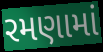
રમણામાં